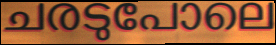
ചരടുപോലെ